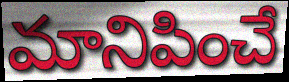
మానిపించే